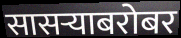
सासऱ्याबरोबर